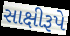
સાક્ષીરૂપે